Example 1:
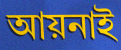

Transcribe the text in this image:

আয়নাই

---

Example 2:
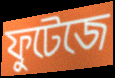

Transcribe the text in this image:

ফুটেজে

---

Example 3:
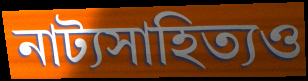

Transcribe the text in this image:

নাট্যসাহিত্যও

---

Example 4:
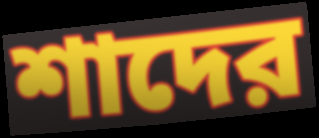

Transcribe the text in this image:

শাদের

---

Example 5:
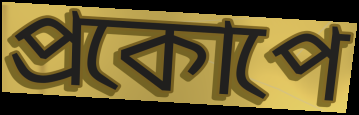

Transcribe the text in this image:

প্রকোপে